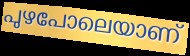
പുഴപോലെയാണ്